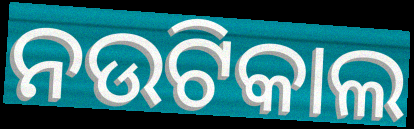
ନଉଟିକାଲ